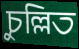
চুল্লিত